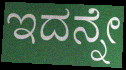
ಇದನ್ನೇ